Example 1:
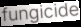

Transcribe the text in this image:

fungicide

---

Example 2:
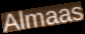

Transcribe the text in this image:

Almaas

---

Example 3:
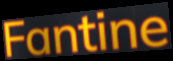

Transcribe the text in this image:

Fantine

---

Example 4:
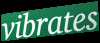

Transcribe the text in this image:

vibrates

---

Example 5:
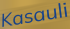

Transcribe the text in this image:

Kasauli